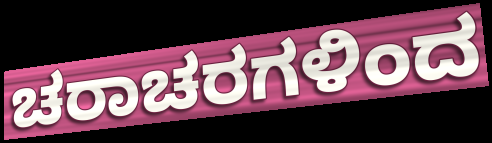
ಚರಾಚರಗಳಿಂದ